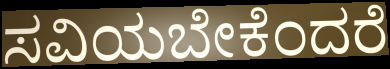
ಸವಿಯಬೇಕೆಂದರೆ